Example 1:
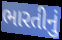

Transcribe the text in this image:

ભારતીનું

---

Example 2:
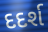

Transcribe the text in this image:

દદર્શ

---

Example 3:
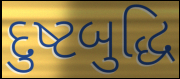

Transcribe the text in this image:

દુષ્ટબુદ્ધિ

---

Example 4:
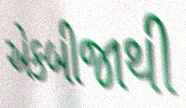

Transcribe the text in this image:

એકબીજાથી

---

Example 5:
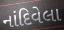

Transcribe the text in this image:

નાંદિવેલા